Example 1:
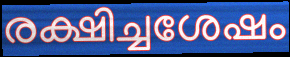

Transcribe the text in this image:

രക്ഷിച്ചശേഷം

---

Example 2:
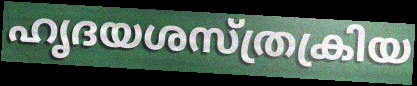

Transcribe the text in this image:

ഹൃദയശസ്ത്രക്രിയ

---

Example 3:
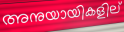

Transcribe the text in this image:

അനുയായികളില്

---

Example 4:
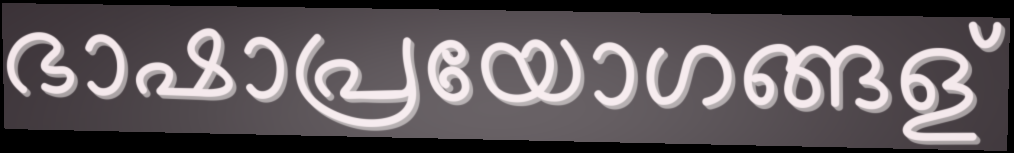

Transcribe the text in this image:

ഭാഷാപ്രയോഗങ്ങള്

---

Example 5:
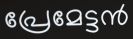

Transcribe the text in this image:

പ്രേമേട്ടൻ